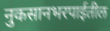
नुकसानभरपाईतील